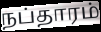
நப்தாரம்